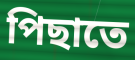
পিছাতে